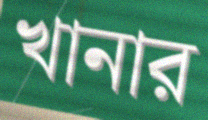
খানার